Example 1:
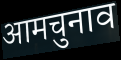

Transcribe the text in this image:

आमचुनाव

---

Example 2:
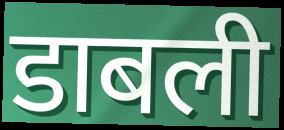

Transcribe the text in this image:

डाबली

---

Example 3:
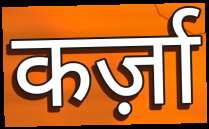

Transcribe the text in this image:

कर्ज़ा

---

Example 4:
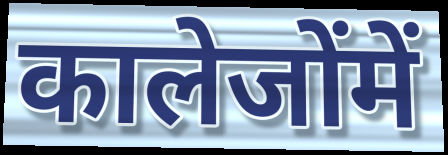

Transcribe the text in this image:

कालेजोंमें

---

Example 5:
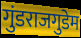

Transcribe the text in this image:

गुंडराजगुडेम